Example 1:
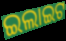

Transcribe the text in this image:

ଇଲାଇଟ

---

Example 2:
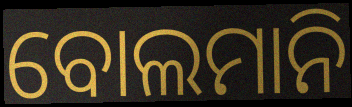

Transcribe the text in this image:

ବୋଲମାନି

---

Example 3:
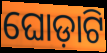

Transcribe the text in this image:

ଘୋଡ଼ାଟି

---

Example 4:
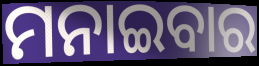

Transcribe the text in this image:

ମନାଇବାର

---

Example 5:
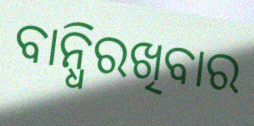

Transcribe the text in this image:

ବାନ୍ଧିରଖିବାର